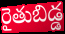
రైతుబిడ్డ